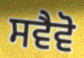
ਸਵੈਵੋ